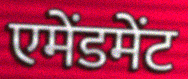
एमेंडमेंट